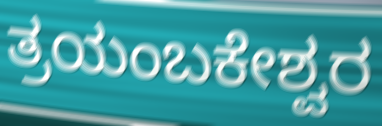
ತ್ರಯಂಬಕೇಶ್ವರ